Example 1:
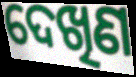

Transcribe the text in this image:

ଦେଖିଣ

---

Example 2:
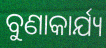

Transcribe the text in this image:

ବୁଣାକାର୍ଯ୍ୟ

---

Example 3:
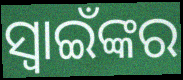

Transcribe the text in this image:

ସ୍ୱାଇଁଙ୍କର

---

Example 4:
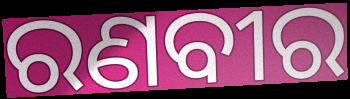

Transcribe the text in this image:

ରଣବୀର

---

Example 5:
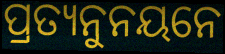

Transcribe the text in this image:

ପ୍ରତ୍ୟନୁନୟନେ